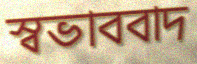
স্বভাববাদ